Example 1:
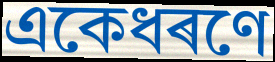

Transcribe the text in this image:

একেধৰণে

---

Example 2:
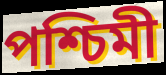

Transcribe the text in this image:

পশ্চিমী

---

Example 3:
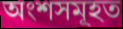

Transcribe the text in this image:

অংশসমূহত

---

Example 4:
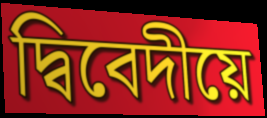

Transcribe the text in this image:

দ্বিবেদীয়ে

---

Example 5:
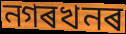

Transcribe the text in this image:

নগৰখনৰ